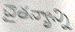
చైతన్యాన్ని